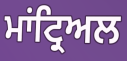
ਮਾਂਟ੍ਰਿਅਲ